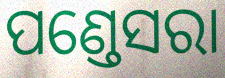
ପଣ୍ଡେସରା